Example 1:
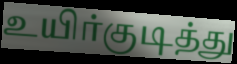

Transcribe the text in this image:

உயிர்குடித்து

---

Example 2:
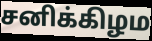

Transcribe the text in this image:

சனிக்கிழம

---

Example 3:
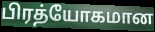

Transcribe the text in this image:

பிரத்யோகமான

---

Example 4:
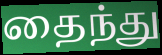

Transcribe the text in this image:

தைந்து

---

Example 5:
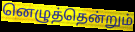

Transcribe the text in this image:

னெழுத்தென்றும்